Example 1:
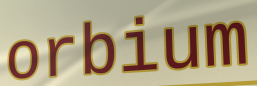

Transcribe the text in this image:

orbium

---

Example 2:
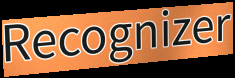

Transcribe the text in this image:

Recognizer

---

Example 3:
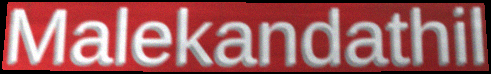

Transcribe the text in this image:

Malekandathil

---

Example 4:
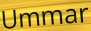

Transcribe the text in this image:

Ummar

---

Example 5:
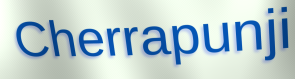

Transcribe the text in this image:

Cherrapunji